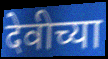
देवीच्या